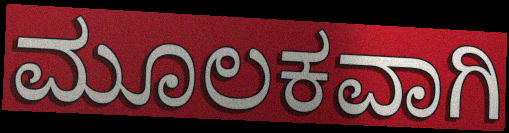
ಮೂಲಕವಾಗಿ